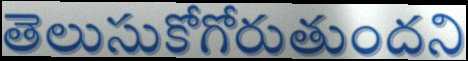
తెలుసుకోగోరుతుందని